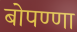
बोपण्णा